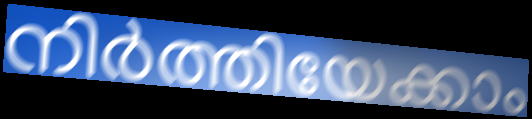
നിർത്തിയേക്കാം